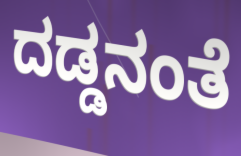
ದಡ್ಡನಂತೆ